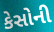
કેસોની